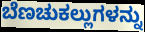
ಬೆಣಚುಕಲ್ಲುಗಳನ್ನು